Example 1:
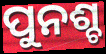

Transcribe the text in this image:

ପୁନଶ୍ଚ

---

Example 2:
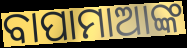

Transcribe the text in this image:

ବାପାମାଆଙ୍କ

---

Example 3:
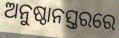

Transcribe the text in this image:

ଅନୁଷ୍ଠାନସ୍ତରରେ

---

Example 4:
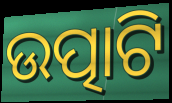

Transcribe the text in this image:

ଉତ୍ପାଟି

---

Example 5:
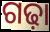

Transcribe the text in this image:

ଗଢ଼ା